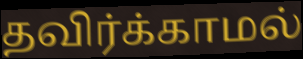
தவிர்க்காமல்